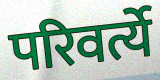
परिवर्त्ये